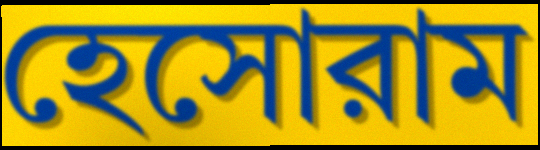
হেসোরাম